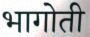
भागोती